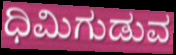
ಧಿಮಿಗುಡುವ